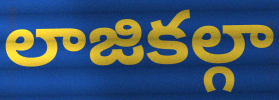
లాజికల్గా